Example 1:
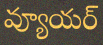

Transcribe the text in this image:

వ్యూయర్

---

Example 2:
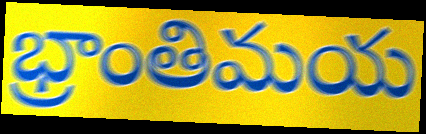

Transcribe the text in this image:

భ్రాంతిమయ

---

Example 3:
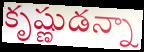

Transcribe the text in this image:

కృష్ణుడన్నా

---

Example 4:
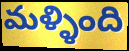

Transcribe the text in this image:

మళ్ళింది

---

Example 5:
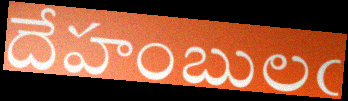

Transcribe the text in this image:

దేహంబులఁ